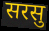
सरसु